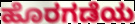
ಹೊರಗಡೆಯ